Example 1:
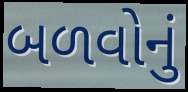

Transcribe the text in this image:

બળવોનું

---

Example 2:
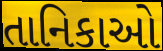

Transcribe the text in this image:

તાનિકાઓ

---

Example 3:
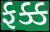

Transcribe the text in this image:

ફક્ક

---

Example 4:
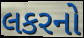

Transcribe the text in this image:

લકરનો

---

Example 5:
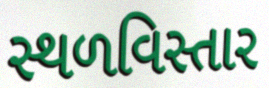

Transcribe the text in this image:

સ્થળવિસ્તાર